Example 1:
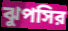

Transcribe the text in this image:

ঝুপসির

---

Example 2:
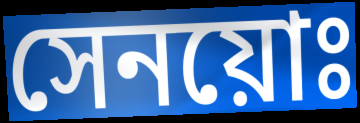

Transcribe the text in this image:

সেনয়োঃ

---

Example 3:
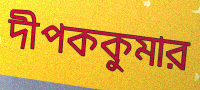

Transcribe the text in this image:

দীপককুমার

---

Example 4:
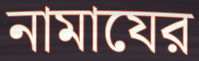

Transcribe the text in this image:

নামাযের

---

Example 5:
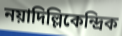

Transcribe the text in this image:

নয়াদিল্লিকেন্দ্রিক